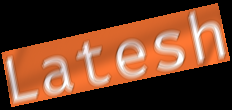
Latesh